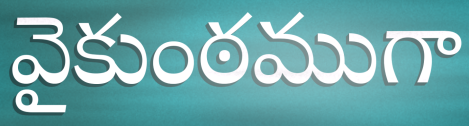
వైకుంఠముగా